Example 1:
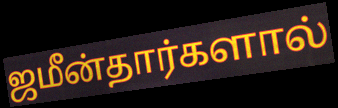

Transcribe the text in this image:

ஜமீன்தார்களால்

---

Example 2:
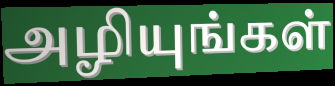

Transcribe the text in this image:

அழியுங்கள்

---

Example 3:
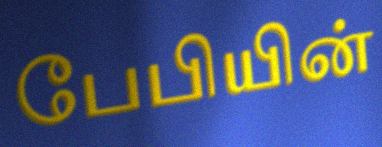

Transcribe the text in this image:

பேபியின்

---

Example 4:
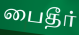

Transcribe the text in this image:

பைதீர்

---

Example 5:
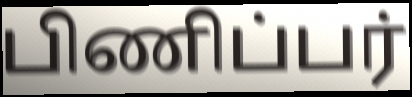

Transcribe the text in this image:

பிணிப்பர்